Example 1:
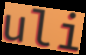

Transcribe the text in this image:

uli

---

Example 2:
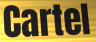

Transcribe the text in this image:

Cartel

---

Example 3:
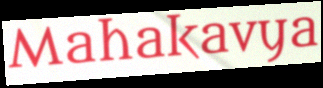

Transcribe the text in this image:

Mahakavya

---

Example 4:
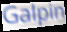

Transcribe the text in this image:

Galpin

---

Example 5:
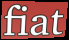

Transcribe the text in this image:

fiat